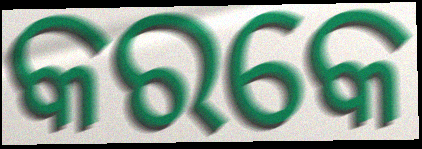
କରକେ